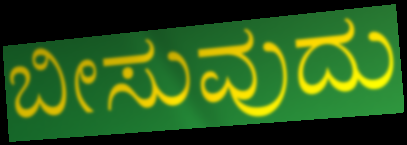
ಬೀಸುವುದು